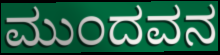
ಮುಂದವನ